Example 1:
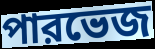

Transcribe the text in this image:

পারভেজ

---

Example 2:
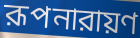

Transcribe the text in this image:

রূপনারায়ণ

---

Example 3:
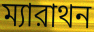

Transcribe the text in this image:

ম্যারাথন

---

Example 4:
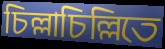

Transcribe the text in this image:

চিল্লাচিল্লিতে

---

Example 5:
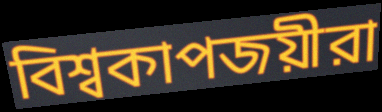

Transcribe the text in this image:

বিশ্বকাপজয়ীরা